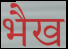
भैख